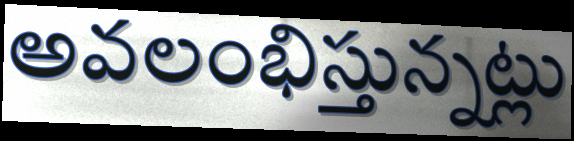
అవలంభిస్తున్నట్లు